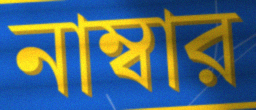
নাম্বার